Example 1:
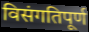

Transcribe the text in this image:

विसंगतिपूर्ण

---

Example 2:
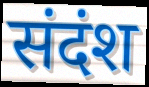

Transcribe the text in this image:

संदंश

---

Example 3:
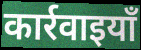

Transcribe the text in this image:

कार्रवाइयाँ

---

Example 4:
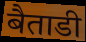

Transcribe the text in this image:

बैताडी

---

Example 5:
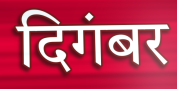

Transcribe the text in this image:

दिगंबर